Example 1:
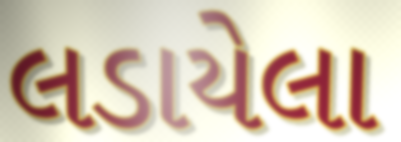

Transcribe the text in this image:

લડાયેલા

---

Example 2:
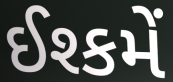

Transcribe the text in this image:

ઈશ્કમેં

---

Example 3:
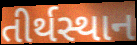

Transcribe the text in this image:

તીર્થસ્થાન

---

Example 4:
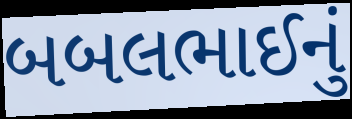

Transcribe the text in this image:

બબલભાઈનું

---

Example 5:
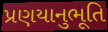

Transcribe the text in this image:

પ્રણયાનુભૂતિ